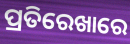
ପ୍ରତିରେଖାରେ